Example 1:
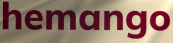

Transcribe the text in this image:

hemango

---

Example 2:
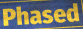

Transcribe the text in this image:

Phased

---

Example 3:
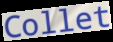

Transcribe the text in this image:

Collet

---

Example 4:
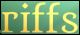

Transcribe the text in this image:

riffs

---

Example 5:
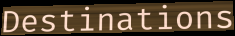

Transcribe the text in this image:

Destinations